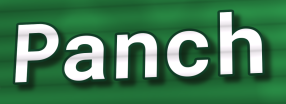
Panch